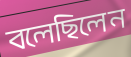
বলেছিলেন